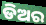
ଡିଅର